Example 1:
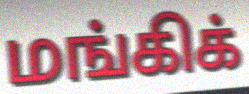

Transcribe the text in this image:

மங்கிக்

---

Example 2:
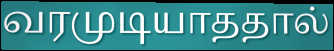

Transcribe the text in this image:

வரமுடியாததால்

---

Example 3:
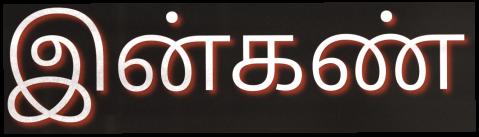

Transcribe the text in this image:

இன்கண்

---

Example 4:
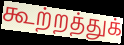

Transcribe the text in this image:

கூற்றத்துக்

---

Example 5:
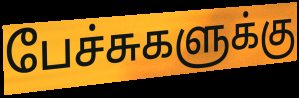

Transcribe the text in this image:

பேச்சுகளுக்கு